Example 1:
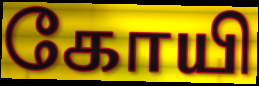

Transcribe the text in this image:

கோயி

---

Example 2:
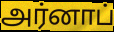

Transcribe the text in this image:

அர்னாப்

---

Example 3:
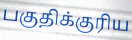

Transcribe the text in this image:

பகுதிக்குரிய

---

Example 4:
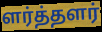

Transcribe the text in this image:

ளர்த்தளர்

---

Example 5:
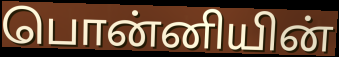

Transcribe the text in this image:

பொன்னியின்